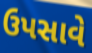
ઉપસાવે